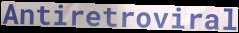
Antiretroviral